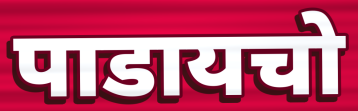
पाडायचो